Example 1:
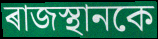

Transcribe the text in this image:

ৰাজস্থানকে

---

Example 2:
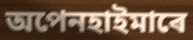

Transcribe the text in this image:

অপেনহাইমাৰে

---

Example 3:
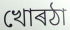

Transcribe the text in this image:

খোৰঠা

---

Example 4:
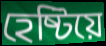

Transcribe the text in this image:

হেষ্টিয়ে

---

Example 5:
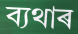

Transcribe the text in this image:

ব্যথাৰ